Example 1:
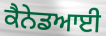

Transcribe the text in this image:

ਕੈਨੇਡਆਈ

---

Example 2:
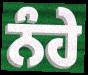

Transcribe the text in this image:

ਨੰਹੇ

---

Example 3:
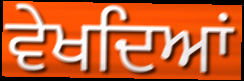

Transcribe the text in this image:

ਵੇਖਦਿਆਂ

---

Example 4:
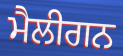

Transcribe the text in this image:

ਮੈਲੀਗਨ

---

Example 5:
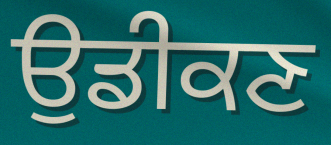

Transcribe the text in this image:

ਉਡੀਕਣ